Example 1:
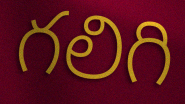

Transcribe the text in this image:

గలిగి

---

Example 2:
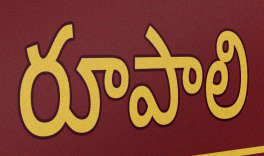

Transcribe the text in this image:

రూపాలి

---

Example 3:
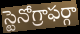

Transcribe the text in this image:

స్టెనోగ్రాఫర్గా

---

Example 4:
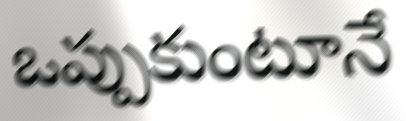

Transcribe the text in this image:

ఒప్పుకుంటూనే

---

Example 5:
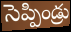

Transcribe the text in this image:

సెప్పిండ్రు